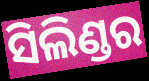
ସିଲିଣ୍ଡର